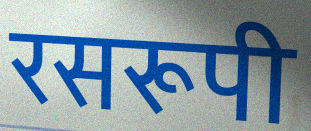
रसरूपी